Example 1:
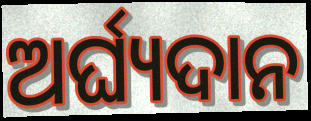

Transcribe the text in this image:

ଅର୍ଘ୍ୟଦାନ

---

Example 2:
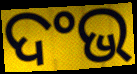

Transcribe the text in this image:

ଦଂଭ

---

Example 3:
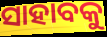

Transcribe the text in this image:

ସାହାବକୁ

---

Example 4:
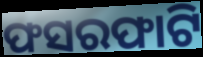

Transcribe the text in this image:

ଫସରଫାଟି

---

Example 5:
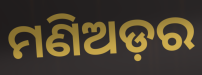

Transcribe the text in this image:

ମଣିଅଡ଼ର